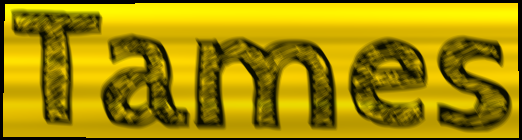
Tames